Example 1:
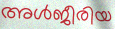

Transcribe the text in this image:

അൾജീരിയ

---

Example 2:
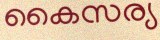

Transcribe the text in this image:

കൈസര്യ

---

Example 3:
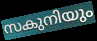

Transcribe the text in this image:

സകുനിയും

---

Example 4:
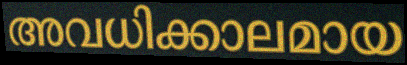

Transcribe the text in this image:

അവധിക്കാലമായ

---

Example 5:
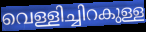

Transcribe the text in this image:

വെള്ളിച്ചിറകുള്ള